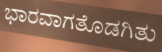
ಭಾರವಾಗತೊಡಗಿತು